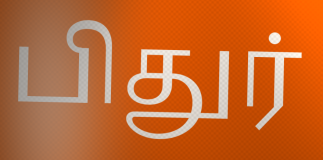
பிதுர்